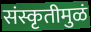
संस्कृतीमुळं